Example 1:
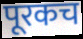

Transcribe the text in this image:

पूरकच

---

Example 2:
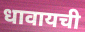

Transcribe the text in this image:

धावायची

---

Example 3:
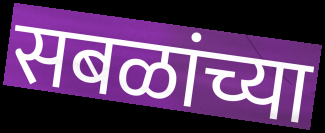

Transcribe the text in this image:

सबळांच्या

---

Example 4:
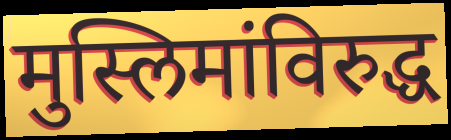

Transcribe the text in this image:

मुस्लिमांविरुद्ध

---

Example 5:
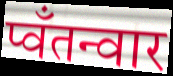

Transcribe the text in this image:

प्वॅंतन्वार